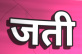
जती